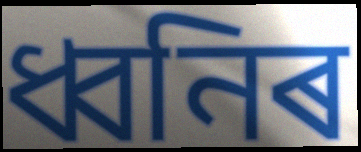
ধ্বনিৰ